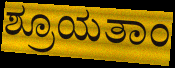
ಶ್ರೂಯತಾಂ